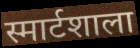
स्मार्टशाला